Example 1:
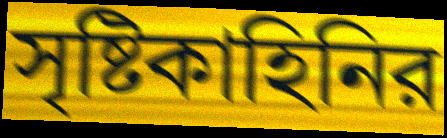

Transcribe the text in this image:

সৃষ্টিকাহিনির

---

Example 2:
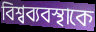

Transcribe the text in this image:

বিশ্বব্যবস্থাকে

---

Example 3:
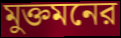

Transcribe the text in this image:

মুক্তমনের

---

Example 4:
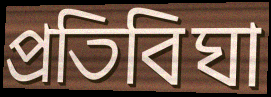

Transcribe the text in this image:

প্রতিবিঘা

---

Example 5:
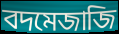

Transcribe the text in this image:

বদমেজাজি